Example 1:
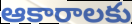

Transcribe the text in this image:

ఆకారాలకు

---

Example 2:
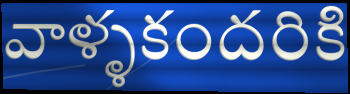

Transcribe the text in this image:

వాళ్ళకందరికి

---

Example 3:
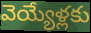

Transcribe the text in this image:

వెయ్యేళ్లకు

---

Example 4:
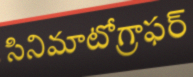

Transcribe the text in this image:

సినిమాటోగ్రాఫర్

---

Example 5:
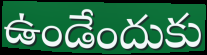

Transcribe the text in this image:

ఉండేందుకు